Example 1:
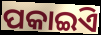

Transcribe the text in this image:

ପକାଇିଏ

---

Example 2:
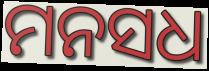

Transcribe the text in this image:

ମନସଧ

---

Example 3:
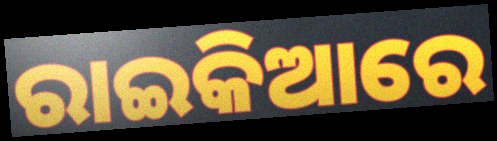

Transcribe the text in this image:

ରାଇକିଆରେ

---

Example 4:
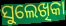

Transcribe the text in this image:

ସୁଲେଖିକା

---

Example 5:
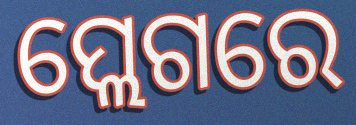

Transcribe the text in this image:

ପ୍ଲେଗରେ